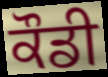
ਕੌਡੀ